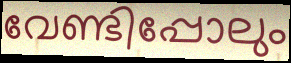
വേണ്ടിപ്പോലും